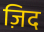
ज़िद